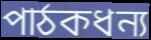
পাঠকধন্য